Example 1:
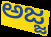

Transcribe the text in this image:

ಅಜ್ಜ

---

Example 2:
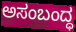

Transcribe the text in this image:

ಅಸಂಬಂದ್ಧ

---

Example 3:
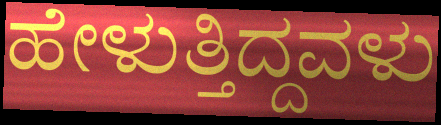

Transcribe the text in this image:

ಹೇಳುತ್ತಿದ್ದವಳು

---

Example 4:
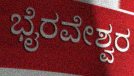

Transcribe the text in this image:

ಭೈರವೇಶ್ವರ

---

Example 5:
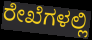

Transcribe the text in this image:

ರೇಖೆಗಳಲ್ಲಿ